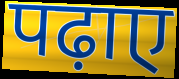
पढ़ाए